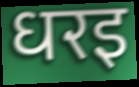
धरइ